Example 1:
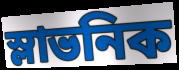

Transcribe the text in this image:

স্লাভনিক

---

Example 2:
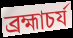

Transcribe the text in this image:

ব্ৰহ্মাচৰ্য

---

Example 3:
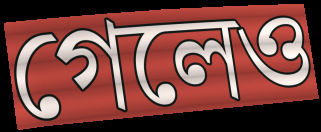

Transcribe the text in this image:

গেলেও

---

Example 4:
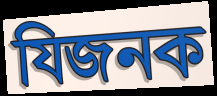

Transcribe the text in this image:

যিজনক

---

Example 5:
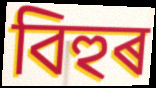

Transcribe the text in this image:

বিহুৰ